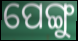
ପେଙ୍ଗୁ